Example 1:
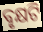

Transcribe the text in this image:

ବୃକ୍ଷଟି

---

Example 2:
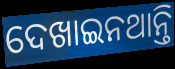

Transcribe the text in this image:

ଦେଖାଇନଥାନ୍ତି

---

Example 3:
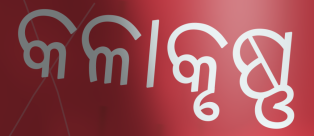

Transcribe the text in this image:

କଳାକୃଷ୍ଣ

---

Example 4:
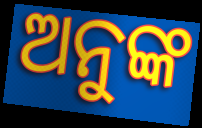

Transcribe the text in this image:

ଅନୁଙ୍କ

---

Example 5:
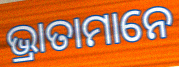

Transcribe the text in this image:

ଭ୍ରାତାମାନେ